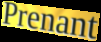
Prenant